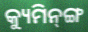
କ୍ୟୁମିନ୍‌ଙ୍ଗ